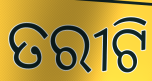
ତରୀଟି